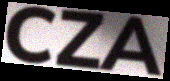
CZA